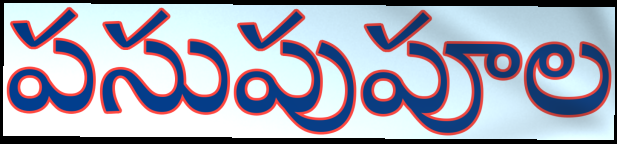
పసుపుపూల